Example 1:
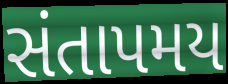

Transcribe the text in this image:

સંતાપમય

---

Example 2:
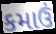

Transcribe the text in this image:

કમાઉં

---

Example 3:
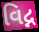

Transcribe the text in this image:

વિદ્ન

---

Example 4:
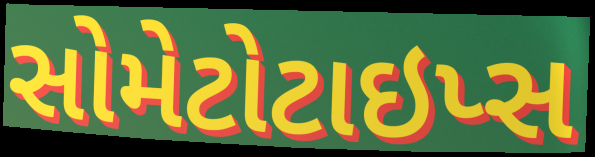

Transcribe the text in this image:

સોમેટોટાઇપ્સ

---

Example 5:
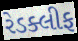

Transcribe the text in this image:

રેડક્લીફ